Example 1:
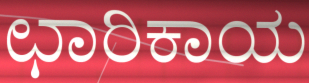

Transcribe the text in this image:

ಛಾರಿಕಾಯ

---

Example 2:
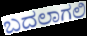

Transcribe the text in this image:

ಬದಲಾಗಲಿ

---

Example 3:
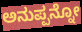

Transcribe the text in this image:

ಅನುಪ್ಪನ್ನೋ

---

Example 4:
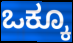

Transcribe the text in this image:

ಒಕ್ಕೂ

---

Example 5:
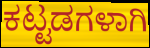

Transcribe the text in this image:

ಕಟ್ಟಡಗಳಾಗಿ